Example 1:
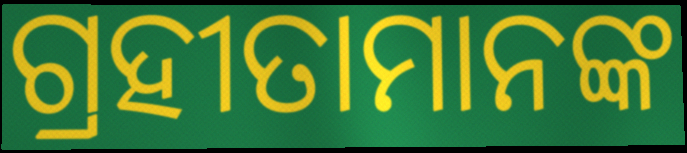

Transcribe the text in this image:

ଗ୍ରହୀତାମାନଙ୍କ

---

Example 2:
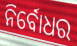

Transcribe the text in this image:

ନିର୍ବୋଧର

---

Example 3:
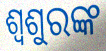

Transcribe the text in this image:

ଶ୍ୱଶୁରଙ୍କ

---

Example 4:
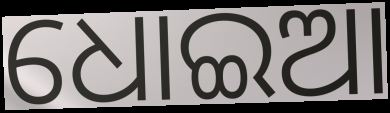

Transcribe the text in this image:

ଧୋଇଆ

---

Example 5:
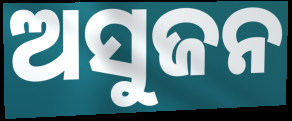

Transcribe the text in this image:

ଅସୁଜନ